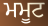
ਮਮੂਟ